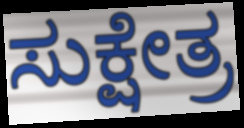
ಸುಕ್ಷೇತ್ರ